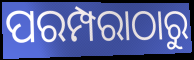
ପରମ୍ପରାଠାରୁ